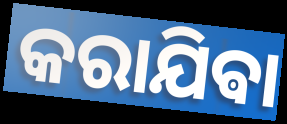
କରାଯିଵା